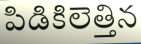
పిడికిలెత్తిన